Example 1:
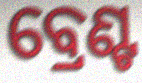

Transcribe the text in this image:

ବ୍ରେଣ୍ଟ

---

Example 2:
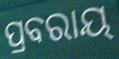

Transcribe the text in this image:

ପ୍ରବରାୟ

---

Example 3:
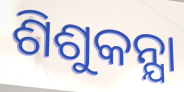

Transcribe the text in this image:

ଶିଶୁକନ୍ଯା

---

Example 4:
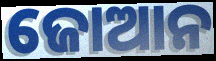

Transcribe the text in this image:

ଜୋଆନ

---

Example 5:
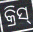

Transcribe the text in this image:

କ୍ରିସ୍